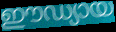
ഈഡ്യായ